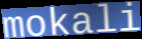
mokali